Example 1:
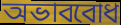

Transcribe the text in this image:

অভাববোধ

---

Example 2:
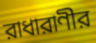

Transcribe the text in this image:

রাধারাণীর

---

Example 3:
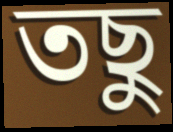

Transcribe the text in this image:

তছু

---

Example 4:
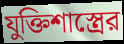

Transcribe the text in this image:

যুক্তিশাস্ত্রের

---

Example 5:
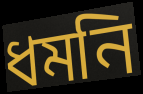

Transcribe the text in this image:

ধমনি